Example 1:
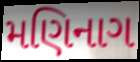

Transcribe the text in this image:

મણિનાગ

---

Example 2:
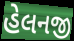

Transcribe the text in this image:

હેલનજી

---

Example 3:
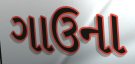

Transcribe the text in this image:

ગાઉના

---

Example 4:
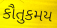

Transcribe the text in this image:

કૌતુકમય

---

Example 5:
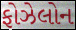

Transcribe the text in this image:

ફોઝેલોન